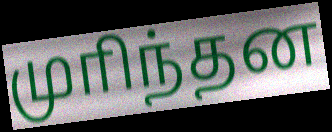
முரிந்தன